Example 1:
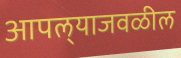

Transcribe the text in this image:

आपल्याजवळील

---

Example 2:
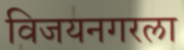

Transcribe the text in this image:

विजयनगरला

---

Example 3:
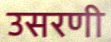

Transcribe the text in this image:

उसरणी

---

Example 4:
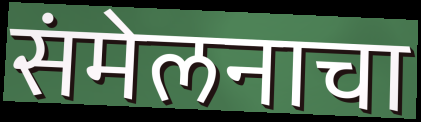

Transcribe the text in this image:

संमेलनाचा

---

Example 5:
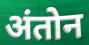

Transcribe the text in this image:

अंतोन